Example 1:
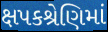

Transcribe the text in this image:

ક્ષપકશ્રેણિમાં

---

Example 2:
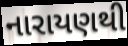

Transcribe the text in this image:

નારાયણથી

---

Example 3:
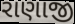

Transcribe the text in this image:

રાણાજી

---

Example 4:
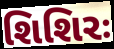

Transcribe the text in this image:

શિશિરઃ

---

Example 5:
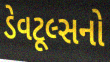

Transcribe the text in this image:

ડેવટૂલ્સનો